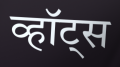
व्हॉट्स